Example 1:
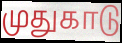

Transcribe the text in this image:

முதுகாடு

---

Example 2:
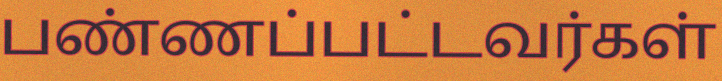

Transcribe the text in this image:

பண்ணப்பட்டவர்கள்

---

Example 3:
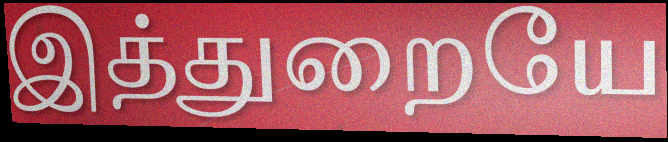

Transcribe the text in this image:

இத்துறையே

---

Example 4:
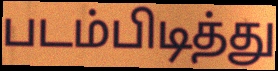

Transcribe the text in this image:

படம்பிடித்து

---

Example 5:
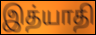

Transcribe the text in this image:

இத்யாதி